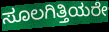
ಸೂಲಗಿತ್ತಿಯರೇ